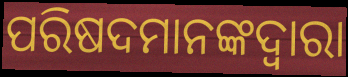
ପରିଷଦମାନଙ୍କଦ୍ୱାରା